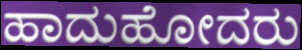
ಹಾದುಹೋದರು